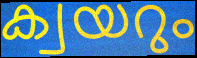
ക്വയറും